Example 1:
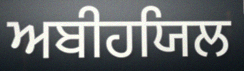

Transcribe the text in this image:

ਅਬੀਹਯਿਲ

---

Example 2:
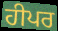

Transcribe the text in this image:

ਹੀਪਰ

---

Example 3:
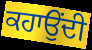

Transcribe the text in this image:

ਕਹਾਉਂਦੀ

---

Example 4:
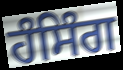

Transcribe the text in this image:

ਹੰਸਿੰਗ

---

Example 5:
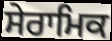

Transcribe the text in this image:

ਸੇਰਾਮਿਕ